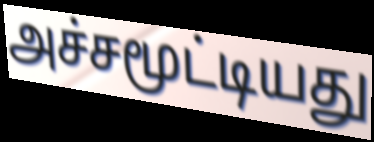
அச்சமூட்டியது